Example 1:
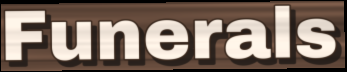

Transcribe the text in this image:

Funerals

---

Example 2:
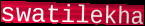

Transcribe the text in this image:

swatilekha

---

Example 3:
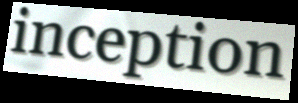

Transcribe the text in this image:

inception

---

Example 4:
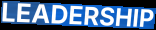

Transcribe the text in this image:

LEADERSHIP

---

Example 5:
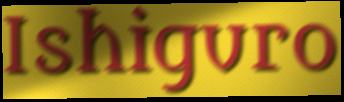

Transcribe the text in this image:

Ishiguro